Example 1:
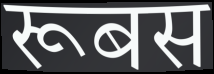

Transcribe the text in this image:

रूबस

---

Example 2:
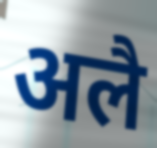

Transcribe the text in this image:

अलै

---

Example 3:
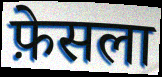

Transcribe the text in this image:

फ़ेसला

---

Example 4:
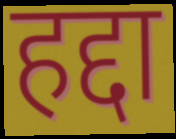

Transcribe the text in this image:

हद्दा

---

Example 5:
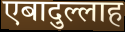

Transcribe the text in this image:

एबादुल्लाह